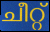
ചീറ്റ്